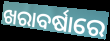
ଖରାବର୍ଷାରେ